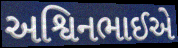
અશ્વિનભાઈએ